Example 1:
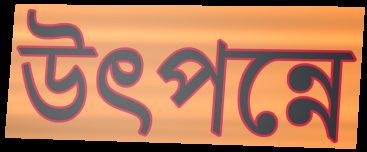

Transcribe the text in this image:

উৎপন্নে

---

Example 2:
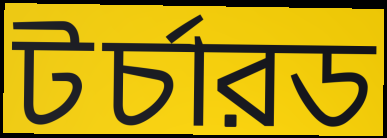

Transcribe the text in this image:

টর্চারড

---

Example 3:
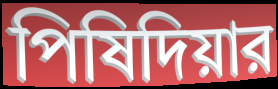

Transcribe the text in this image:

পিষিদিয়ার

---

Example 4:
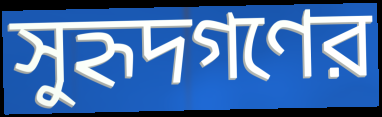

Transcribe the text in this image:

সুহৃদগণের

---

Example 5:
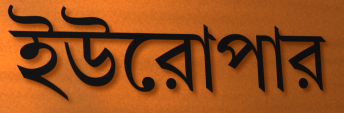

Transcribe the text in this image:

ইউরোপার